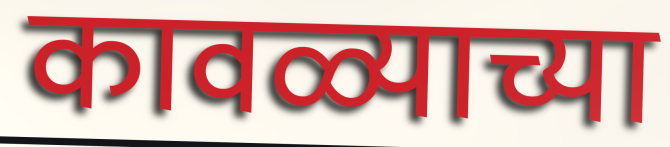
कावळ्याच्या